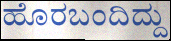
ಹೊರಬಂದಿದ್ದು